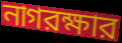
নাগরক্ষার